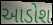
આડોશ